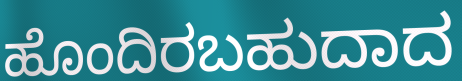
ಹೊಂದಿರಬಹುದಾದ